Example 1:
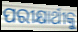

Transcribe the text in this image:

ପରୀକ୍ଷାର୍ଥୀକୁ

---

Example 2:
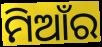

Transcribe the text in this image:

ମିଆଁର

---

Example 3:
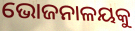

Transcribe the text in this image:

ଭୋଜନାଳୟକୁ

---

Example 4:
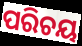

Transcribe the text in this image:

ପରିଚୟ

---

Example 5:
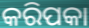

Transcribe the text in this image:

କରିପକା